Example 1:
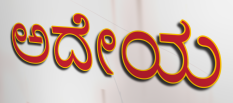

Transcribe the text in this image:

ಅದೇಯ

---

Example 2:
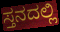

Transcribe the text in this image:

ಸ್ತನದಲ್ಲಿ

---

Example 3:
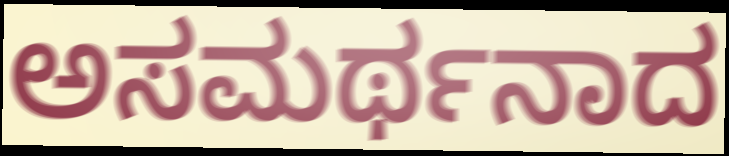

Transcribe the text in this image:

ಅಸಮರ್ಥನಾದ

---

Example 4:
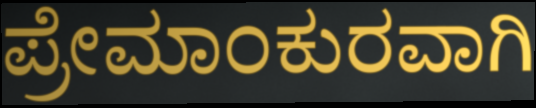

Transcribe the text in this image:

ಪ್ರೇಮಾಂಕುರವಾಗಿ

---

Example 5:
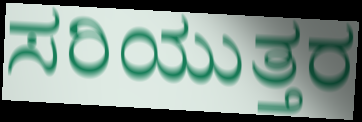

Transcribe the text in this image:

ಸರಿಯುತ್ತರ